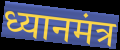
ध्यानमंत्र